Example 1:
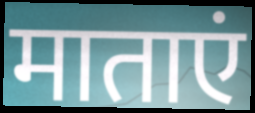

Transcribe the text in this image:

माताएं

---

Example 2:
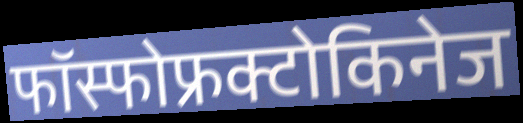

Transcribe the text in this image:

फॉस्फोफ्रक्टोकिनेज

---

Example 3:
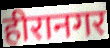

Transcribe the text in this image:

हीरानगर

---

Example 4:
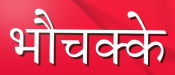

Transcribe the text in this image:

भौचक्के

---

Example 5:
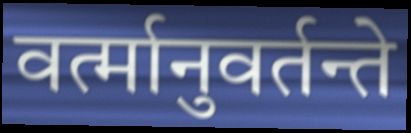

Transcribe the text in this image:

वर्त्मानुवर्तन्ते